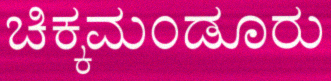
ಚಿಕ್ಕಮಂಡೂರು